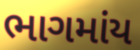
ભાગમાંય